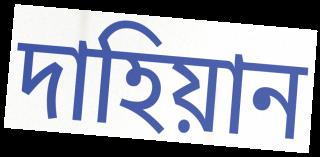
দাহিয়ান